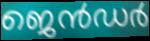
ജെൻഡർ